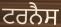
ਟਰਨੈਸ